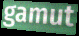
gamut